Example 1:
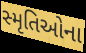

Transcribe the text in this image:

સ્મૃતિઓના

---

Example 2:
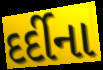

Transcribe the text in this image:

દર્દીના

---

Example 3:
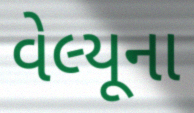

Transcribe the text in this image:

વેલ્યૂના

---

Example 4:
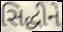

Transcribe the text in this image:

સિદ્ધીને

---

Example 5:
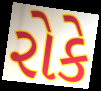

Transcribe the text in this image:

રોકે